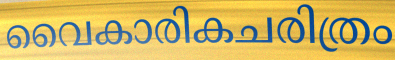
വൈകാരികചരിത്രം